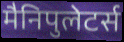
मैनिपुलेटर्स